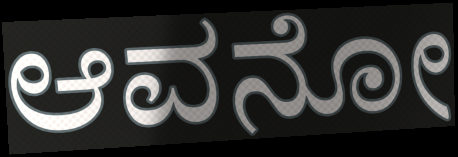
ಆವನೋ